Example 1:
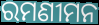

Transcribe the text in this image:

ରମଣୀମନ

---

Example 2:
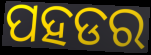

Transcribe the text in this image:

ପହଡର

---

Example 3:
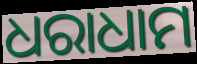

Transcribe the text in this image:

ଧରାଧାମ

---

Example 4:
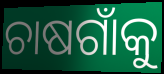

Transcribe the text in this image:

ଚାଷଗାଁକୁ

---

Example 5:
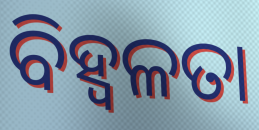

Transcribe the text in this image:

ବିହ୍ଵଳତା